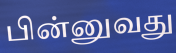
பின்னுவது